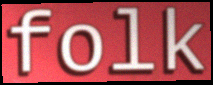
folk